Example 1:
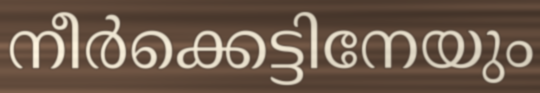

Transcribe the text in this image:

നീർക്കെട്ടിനേയും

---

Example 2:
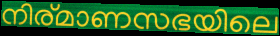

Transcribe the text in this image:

നിര്മാണസഭയിലെ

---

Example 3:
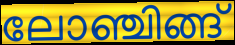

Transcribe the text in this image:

ലോഞ്ചിങ്ങ്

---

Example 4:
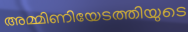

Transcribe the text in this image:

അമ്മിണിയേടത്തിയുടെ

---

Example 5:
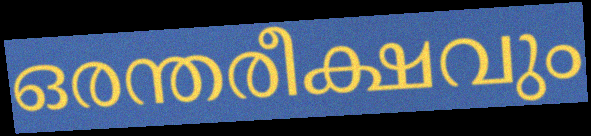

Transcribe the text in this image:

ഒരന്തരീക്ഷവും